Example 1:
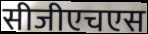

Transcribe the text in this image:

सीजीएचएस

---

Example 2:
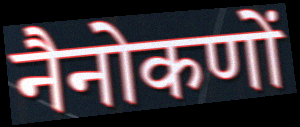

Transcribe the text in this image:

नैनोकणों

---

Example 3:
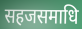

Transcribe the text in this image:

सहजसमाधि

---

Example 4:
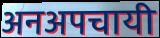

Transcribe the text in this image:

अनअपचायी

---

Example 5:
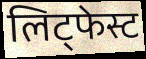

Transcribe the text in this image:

लिट्फेस्ट